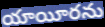
యాయీరను